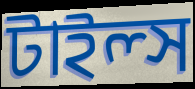
টাইল্স